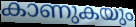
കാണുകയും